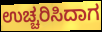
ಉಚ್ಚರಿಸಿದಾಗ